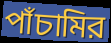
পাঁচামির